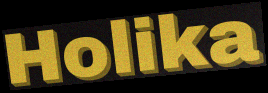
Holika